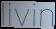
livin